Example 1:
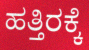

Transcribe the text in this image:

ಹತ್ತಿರಕ್ಕೆ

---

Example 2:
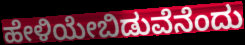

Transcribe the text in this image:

ಹೇಳಿಯೇಬಿಡುವೆನೆಂದು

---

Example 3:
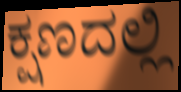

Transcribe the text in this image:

ಕ್ಷಣದಲ್ಲಿ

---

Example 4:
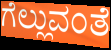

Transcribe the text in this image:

ಗೆಲ್ಲುವಂತೆ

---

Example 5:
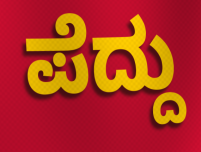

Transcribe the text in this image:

ಪೆದ್ದು